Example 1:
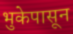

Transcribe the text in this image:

भुकेपासून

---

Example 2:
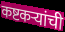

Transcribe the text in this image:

कष्टकऱ्यांची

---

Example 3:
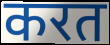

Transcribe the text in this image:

करत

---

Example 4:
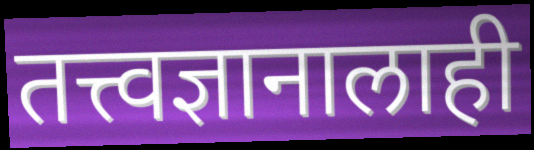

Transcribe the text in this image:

तत्त्वज्ञानालाही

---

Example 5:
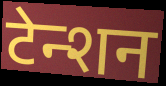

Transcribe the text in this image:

टेन्शन